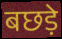
बछड़े